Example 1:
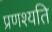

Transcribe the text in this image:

प्रणश्यति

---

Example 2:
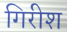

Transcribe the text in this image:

गिरीश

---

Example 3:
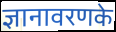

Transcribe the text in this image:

ज्ञानावरणके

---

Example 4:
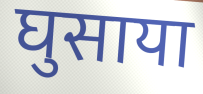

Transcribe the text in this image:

घुसाया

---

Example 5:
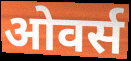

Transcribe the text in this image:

ओवर्स